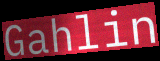
Gahlin